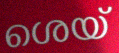
ശെയ്